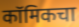
कॉमिकचा